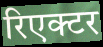
रिएक्टर